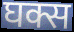
घक्स